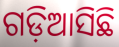
ଗଡ଼ିଆସିଛି